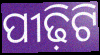
ପୀଢ଼ିଟି